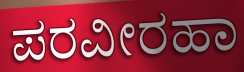
ಪರವೀರಹಾ